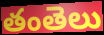
తంతెలు